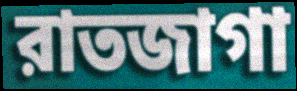
রাতজাগা